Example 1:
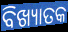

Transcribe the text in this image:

ବିଖ୍ୟାତକ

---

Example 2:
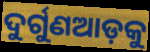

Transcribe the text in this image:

ଦୁର୍ଗୁଣଆଡ଼କୁ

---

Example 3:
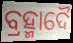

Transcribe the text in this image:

ବ୍ରହ୍ମାଦୈ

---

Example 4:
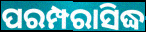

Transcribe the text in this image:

ପରମ୍ପରାସିଦ୍ଧ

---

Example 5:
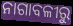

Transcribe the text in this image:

ନାଗାବଳୀରୁ